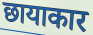
छायाकार